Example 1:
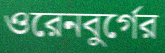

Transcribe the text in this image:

ওরেনবুর্গের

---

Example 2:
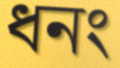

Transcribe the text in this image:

ধনং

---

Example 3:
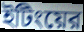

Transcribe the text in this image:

ইটিংয়ের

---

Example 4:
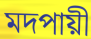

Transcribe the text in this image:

মদপায়ী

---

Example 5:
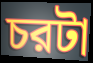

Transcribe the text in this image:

চরটা